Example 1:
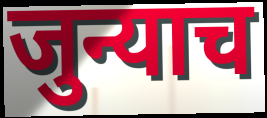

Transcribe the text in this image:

जुन्याच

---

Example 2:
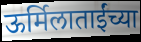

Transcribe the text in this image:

ऊर्मिलाताईंच्या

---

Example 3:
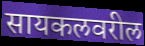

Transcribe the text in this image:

सायकलवरील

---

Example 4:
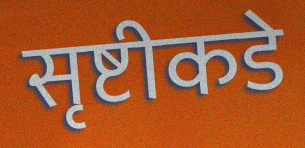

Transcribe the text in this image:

सृष्टीकडे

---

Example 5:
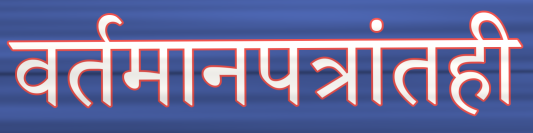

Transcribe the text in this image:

वर्तमानपत्रांतही